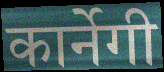
कार्नेगी